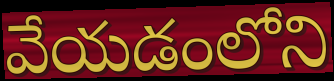
వేయడంలోని